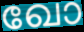
ഖോ